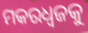
ମକରଧ୍ୱଜକୁ